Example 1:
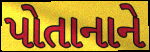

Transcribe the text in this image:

પોતાનાને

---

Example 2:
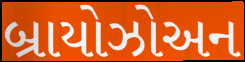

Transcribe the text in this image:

બ્રાયોઝોઅન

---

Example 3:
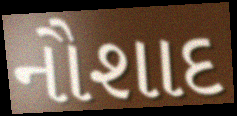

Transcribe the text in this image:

નૌશાદ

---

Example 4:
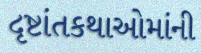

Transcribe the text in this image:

દૃષ્ટાંતકથાઓમાંની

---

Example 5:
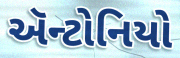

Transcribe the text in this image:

ઍન્ટોનિયો